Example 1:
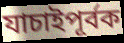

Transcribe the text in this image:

যাচাইপূর্বক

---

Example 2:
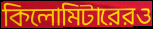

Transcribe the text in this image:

কিলোমিটারেরও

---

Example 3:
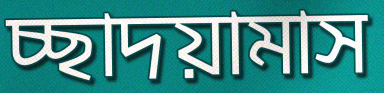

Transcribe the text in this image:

চ্ছাদয়ামাস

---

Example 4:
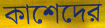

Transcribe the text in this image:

কাশেদের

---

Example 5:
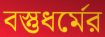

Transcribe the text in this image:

বস্তুধর্মের